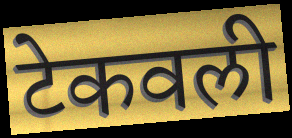
टेकवली